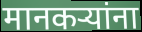
मानकऱ्यांना